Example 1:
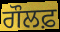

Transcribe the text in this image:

ਗੌਲਫ਼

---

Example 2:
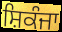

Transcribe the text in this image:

ਸ਼ਿਕੰਜਾ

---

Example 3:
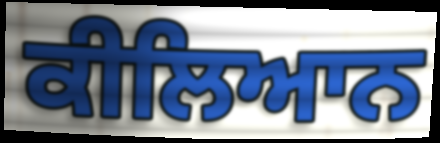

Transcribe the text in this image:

ਕੀਲਿਆਨ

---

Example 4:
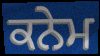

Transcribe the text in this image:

ਕਨੇਮ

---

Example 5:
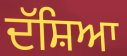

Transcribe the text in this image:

ਦੱਸ਼ਿਆ